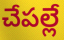
చేపల్లే